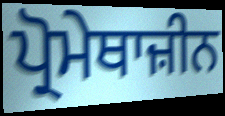
ਪ੍ਰੋਮੇਥਾਜ਼ੀਨ